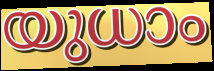
യുധാം